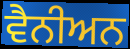
ਵੈਨੀਅਨ